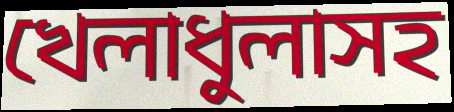
খেলাধুলাসহ